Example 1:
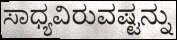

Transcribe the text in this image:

ಸಾಧ್ಯವಿರುವಷ್ಟನ್ನು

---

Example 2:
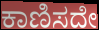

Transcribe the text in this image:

ಕಾಣಿಸದೇ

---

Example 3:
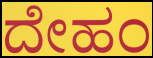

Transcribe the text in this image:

ದೇಹಂ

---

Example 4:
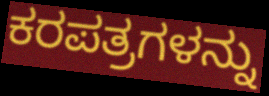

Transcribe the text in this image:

ಕರಪತ್ರಗಳನ್ನು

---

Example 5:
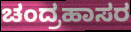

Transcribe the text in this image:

ಚಂದ್ರಹಾಸರ